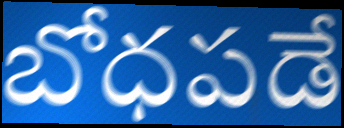
బోధపడే